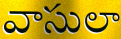
వాసులా